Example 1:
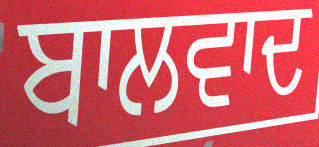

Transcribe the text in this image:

ਬਾਲਵਾਦ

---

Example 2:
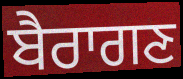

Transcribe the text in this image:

ਬੈਰਾਗਣ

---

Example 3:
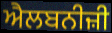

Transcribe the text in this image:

ਐਲਬਨੀਜ਼ੀ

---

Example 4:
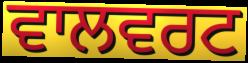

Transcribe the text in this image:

ਵਾਲਵਰਟ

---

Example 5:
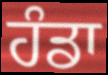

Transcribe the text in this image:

ਹੰਡਾ